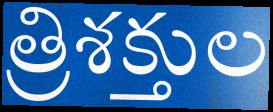
త్రిశక్తుల